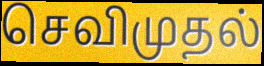
செவிமுதல்